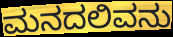
ಮನದಲಿವನು